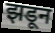
झडून